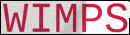
WIMPS